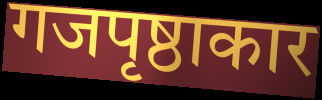
गजपृष्ठाकार